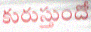
కురుస్తుందో